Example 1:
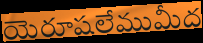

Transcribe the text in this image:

యెరూషలేముమీద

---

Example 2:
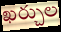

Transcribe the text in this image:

ఖర్చుల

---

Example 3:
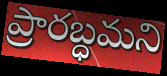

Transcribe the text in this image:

ప్రారబ్ధమని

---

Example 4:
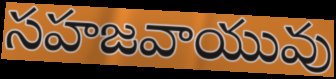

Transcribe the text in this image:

సహజవాయువు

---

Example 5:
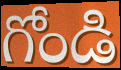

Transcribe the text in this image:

గోండి